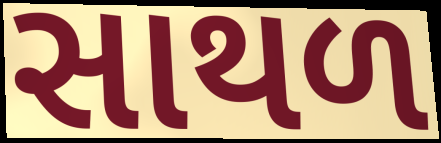
સાથળ